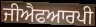
ਜੀਐਫਆਰਪੀ